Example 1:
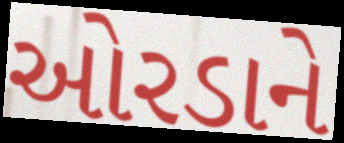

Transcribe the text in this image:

ઓરડાને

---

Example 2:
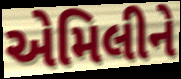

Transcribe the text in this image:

એમિલીને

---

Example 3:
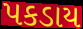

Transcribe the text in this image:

પકડાય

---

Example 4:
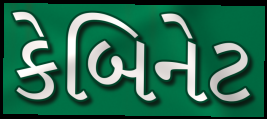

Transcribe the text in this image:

કેબિનેટ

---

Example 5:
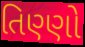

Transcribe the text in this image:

તિણ્ણો